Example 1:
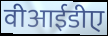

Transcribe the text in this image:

वीआईडीए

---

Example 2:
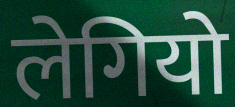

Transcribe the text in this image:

लेगियो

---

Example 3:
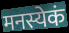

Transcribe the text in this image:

मनस्येकं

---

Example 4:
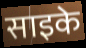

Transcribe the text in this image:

साइके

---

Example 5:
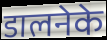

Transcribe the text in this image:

डालनेके